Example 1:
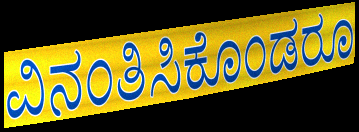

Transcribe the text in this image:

ವಿನಂತಿಸಿಕೊಂಡರೂ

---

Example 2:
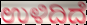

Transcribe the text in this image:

ಉಳಿದಿದೆ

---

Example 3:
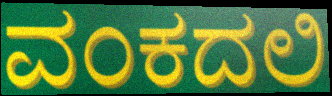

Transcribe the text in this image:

ವಂಕದಲಿ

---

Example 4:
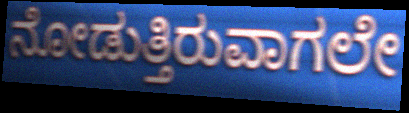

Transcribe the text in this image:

ನೋಡುತ್ತಿರುವಾಗಲೇ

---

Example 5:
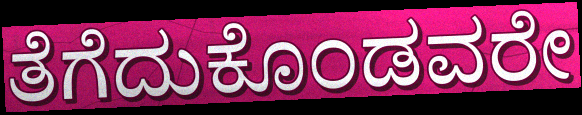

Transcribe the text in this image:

ತೆಗೆದುಕೊಂಡವರೇ